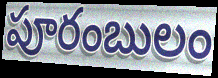
పూరంబులం